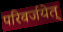
परिवर्जयेत्